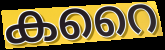
കറൈ